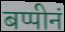
बप्पीनं